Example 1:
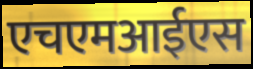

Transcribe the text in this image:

एचएमआईएस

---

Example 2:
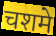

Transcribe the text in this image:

चशमे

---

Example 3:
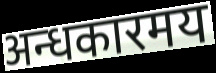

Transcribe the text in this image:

अन्धकारमय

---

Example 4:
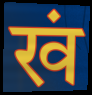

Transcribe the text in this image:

खं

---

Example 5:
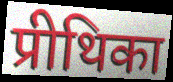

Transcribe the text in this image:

प्रीथिका